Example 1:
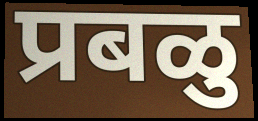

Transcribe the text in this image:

प्रबळु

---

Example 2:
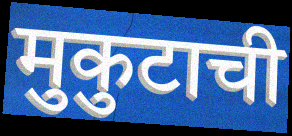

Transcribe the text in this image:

मुकुटाची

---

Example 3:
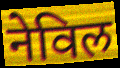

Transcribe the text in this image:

नेविल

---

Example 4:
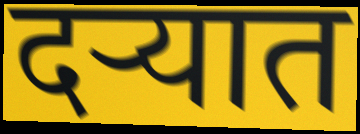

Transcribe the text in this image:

दऱ्यात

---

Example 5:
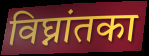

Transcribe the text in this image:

विघ्नांतका